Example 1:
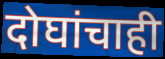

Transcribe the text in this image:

दोघांचाही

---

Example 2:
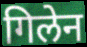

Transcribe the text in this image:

गिलेन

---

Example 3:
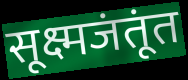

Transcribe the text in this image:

सूक्ष्मजंतूंत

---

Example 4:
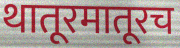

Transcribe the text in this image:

थातूरमातूरच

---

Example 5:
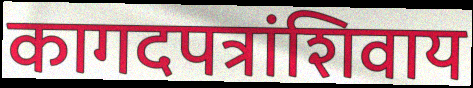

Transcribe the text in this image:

कागदपत्रांशिवाय